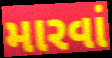
મારવાં